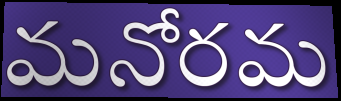
మనోరమ